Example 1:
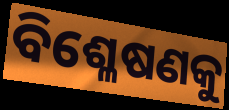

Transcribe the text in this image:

ବିଶ୍ଳେଷଣକୁ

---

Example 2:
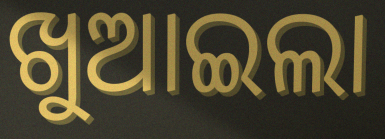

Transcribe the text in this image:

ଖୁଆଇଲା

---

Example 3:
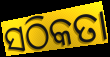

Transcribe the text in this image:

ସଠିକତା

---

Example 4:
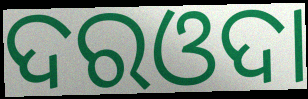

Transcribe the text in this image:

ଦରଓଦା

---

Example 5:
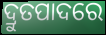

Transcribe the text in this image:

ଦ୍ରୁତପାଦରେ